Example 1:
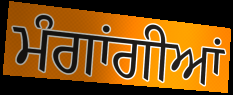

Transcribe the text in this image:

ਮੰਗਾਂਗੀਆਂ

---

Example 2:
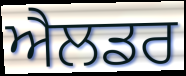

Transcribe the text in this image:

ਐਲਡਰ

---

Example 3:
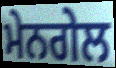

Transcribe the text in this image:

ਮੇਨਗੇਲ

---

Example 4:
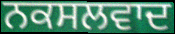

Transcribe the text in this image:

ਨਕਸਲਵਾਦ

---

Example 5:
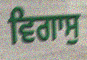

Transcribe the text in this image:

ਵਿਗਾਸੁ